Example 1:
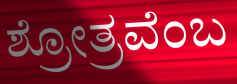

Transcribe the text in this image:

ಶ್ರೋತ್ರವೆಂಬ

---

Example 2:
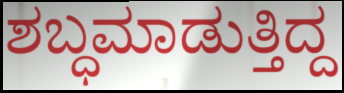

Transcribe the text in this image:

ಶಬ್ಧಮಾಡುತ್ತಿದ್ದ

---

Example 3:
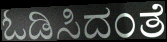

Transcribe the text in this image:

ಓಡಿಸಿದಂತೆ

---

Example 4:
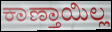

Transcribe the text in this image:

ಕಾಣ್ತಾಯಿಲ್ಲ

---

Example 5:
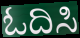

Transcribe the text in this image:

ಓದಿಸಿ